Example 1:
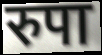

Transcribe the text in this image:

रुपा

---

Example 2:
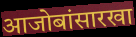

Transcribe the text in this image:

आजोबांसारखा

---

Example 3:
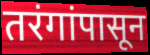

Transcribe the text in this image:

तरंगांपासून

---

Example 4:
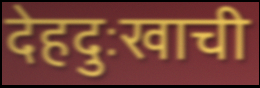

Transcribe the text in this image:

देहदुःखाची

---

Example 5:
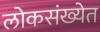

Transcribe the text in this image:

लोकसंख्येत